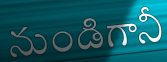
నుండిగానీ